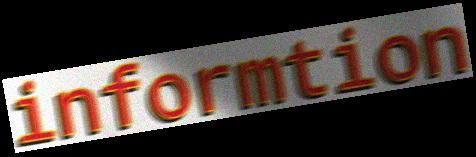
informtion